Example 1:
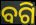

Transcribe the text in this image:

ବଗି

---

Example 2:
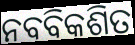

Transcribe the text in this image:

ନବବିକଶିତ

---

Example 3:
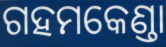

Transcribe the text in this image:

ଗହମକେଣ୍ଡା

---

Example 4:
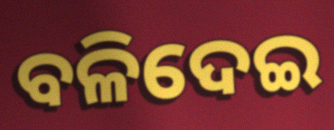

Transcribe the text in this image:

ବଳିଦେଇ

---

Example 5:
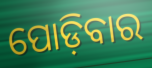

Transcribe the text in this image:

ପୋଡ଼ିବାର